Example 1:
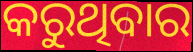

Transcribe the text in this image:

କରୁଥିବାର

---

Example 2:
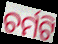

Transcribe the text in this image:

ଚର୍ମଟି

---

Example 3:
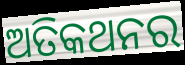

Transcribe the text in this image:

ଅତିକଥନର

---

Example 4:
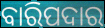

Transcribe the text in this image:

ବାରିପଦାର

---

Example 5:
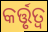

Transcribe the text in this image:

କର୍ତ୍ତୃତ୍ୱ